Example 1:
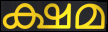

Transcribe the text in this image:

ക്ഷമ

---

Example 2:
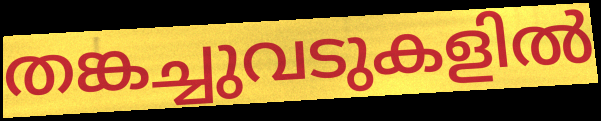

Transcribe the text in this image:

തങ്കച്ചുവടുകളിൽ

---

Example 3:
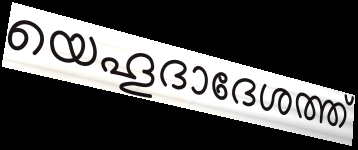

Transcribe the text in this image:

യെഹൂദാദേശത്ത്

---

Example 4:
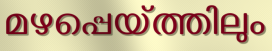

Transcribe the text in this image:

മഴപ്പെയ്ത്തിലും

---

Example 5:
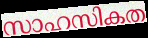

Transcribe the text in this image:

സാഹസികത